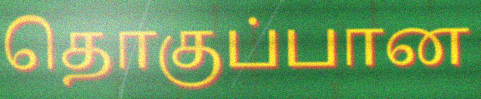
தொகுப்பான